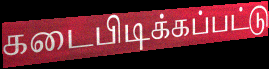
கடைபிடிக்கப்பட்டு